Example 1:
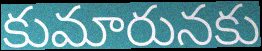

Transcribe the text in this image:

కుమారునకు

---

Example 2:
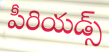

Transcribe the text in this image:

పీరియడ్స్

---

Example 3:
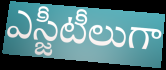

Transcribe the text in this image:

ఎస్జీటీలుగా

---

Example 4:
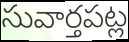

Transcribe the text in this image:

సువార్తపట్ల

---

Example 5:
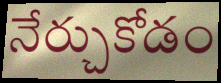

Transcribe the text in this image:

నేర్చుకోడం